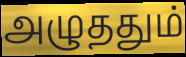
அழுததும்